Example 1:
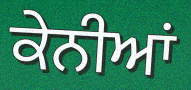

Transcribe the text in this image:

ਕੇਨੀਆਂ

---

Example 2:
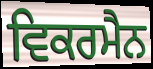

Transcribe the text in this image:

ਵਿਕਰਮੈਨ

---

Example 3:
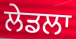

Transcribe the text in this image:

ਲੇਡਲਾ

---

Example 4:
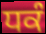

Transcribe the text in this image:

ਧਕੰ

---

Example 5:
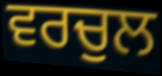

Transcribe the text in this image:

ਵਰਚੁਲ